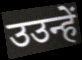
उउन्हें